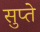
सुप्ते